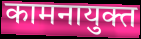
कामनायुक्त